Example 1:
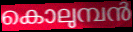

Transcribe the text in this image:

കൊലുമ്പൻ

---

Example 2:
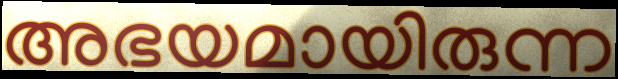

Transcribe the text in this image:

അഭയമായിരുന്ന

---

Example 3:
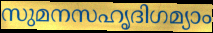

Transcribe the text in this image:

സുമനസഹൃദിഗമ്യാം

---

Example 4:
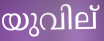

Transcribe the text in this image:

യുവില്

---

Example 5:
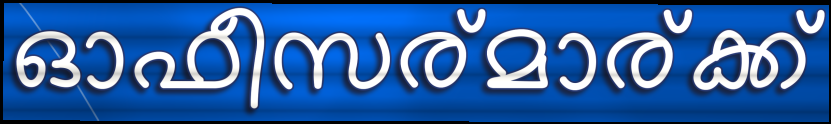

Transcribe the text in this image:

ഓഫീസര്മാര്ക്ക്